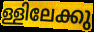
ള്ളിലേക്കു